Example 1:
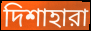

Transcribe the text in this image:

দিশাহারা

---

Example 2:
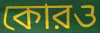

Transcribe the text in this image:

কোরও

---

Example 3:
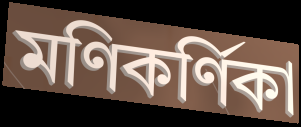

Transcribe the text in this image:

মণিকর্ণিকা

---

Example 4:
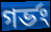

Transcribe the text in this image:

গর্ভং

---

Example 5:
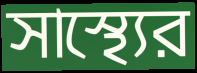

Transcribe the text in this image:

সাস্থ্যের